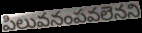
పిలువనంపవలెనని